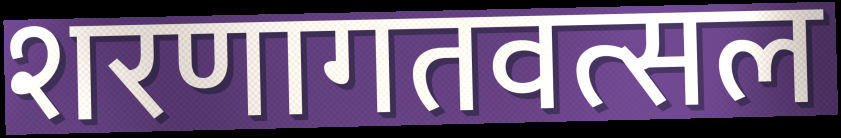
शरणागतवत्सल